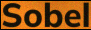
Sobel